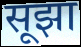
सूझा